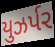
યુઝર્પર